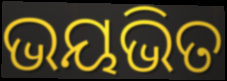
ଭୟଭିତ